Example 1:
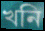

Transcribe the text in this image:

খনি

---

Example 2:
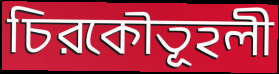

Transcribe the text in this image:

চিরকৌতূহলী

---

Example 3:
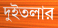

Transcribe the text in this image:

দুইতলার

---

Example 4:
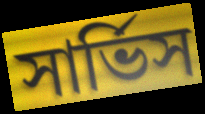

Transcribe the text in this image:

সার্ভিস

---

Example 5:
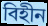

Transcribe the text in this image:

বিহীন